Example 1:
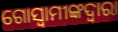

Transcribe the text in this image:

ଗୋସ୍ୱାମୀଙ୍କଦ୍ୱାରା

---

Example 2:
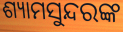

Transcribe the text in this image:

ଶ୍ୟାମସୁନ୍ଦରଙ୍କ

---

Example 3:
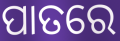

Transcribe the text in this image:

ପାତରେ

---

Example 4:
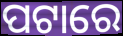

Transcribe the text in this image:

ପଟାରେ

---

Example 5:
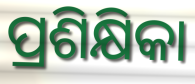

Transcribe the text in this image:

ପ୍ରଶିକ୍ଷିକା